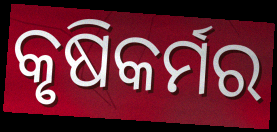
କୃଷିକର୍ମର